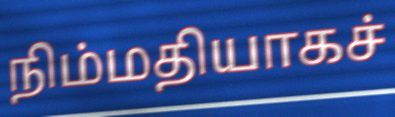
நிம்மதியாகச்